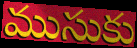
ముసుకు